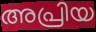
അപ്രിയ